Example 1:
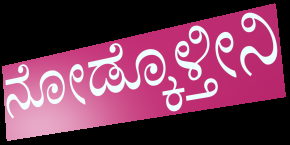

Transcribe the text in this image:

ನೋಡ್ಕೊಳ್ತೀನಿ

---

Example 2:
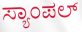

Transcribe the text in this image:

ಸ್ಯಾಂಪಲ್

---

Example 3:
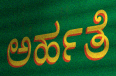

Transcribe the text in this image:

ಅರ್ಹತೆ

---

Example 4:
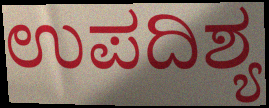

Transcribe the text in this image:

ಉಪದಿಶ್ಯ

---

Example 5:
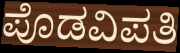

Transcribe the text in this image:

ಪೊಡವಿಪತಿ